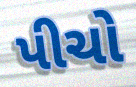
પીચો